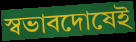
স্বভাবদোষেই